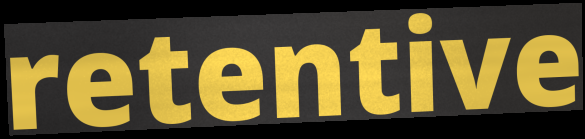
retentive